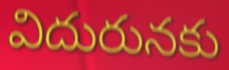
విదురునకు